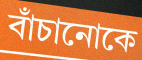
বাঁচানোকে